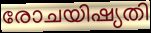
രോചയിഷ്യതി